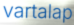
vartalap